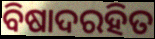
ବିଷାଦରହିତ